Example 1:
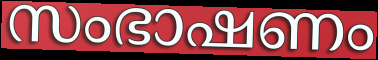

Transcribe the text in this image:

സംഭാഷണം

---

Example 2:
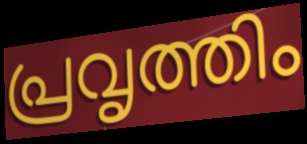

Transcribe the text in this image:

പ്രവൃത്തിം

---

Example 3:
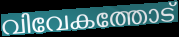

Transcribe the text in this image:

വിവേകത്തോട്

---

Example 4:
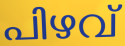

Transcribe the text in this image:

പിഴവ്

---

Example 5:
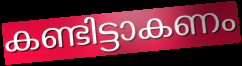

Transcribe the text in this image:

കണ്ടിട്ടാകണം